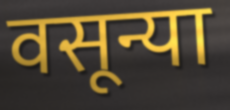
वसून्या